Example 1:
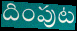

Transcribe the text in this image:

దింపుట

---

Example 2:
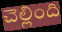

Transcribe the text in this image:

చెల్లింది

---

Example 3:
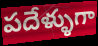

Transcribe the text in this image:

పదేళ్ళుగా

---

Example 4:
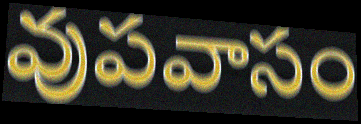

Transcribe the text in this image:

వుపవాసం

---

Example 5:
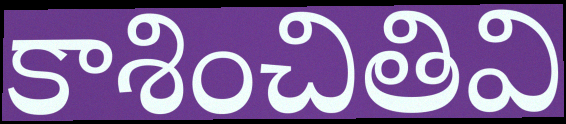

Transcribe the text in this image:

కాశించితివి